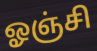
ஓஞ்சி